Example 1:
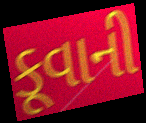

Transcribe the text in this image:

કૂવાની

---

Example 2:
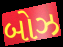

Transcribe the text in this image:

બોઝ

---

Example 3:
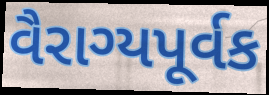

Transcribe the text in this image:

વૈરાગ્યપૂર્વક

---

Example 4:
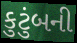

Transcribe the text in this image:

કુટુંબની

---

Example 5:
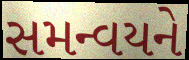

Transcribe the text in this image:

સમન્વયને